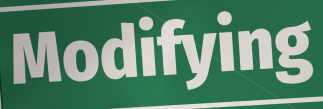
Modifying